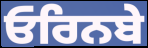
ਓਰਿਨਬੇ